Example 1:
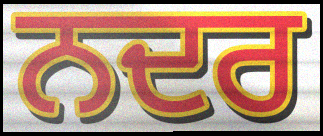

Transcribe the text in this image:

ਨਦਰ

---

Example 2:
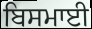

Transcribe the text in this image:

ਬਿਸਮਾਈ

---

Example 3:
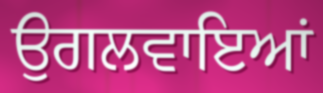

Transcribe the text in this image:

ਉਗਲਵਾਇਆਂ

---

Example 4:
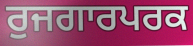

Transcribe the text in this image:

ਰੁਜਗਾਰਪਰਕ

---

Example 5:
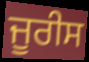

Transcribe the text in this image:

ਜੂਰੀਸ